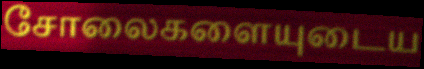
சோலைகளையுடைய